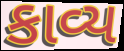
કાવ્ય